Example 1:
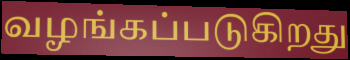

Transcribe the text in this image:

வழங்கப்படுகிறது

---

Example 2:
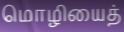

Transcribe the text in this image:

மொழியைத்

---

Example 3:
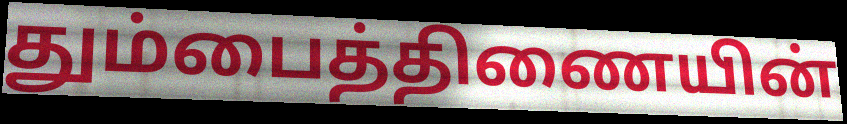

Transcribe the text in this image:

தும்பைத்திணையின்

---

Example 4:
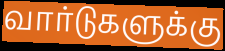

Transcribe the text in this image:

வார்டுகளுக்கு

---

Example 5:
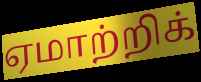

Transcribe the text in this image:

ஏமாற்றிக்